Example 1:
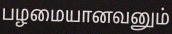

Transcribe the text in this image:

பழமையானவனும்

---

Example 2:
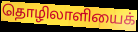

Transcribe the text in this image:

தொழிலாளியைக்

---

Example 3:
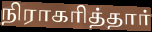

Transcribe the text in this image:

நிராகரித்தார்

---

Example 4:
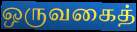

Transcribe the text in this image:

ஒருவகைத்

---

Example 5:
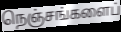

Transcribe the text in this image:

நெஞ்சங்களைப்